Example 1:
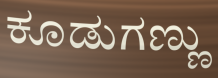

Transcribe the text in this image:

ಕೂಡುಗಣ್ಣು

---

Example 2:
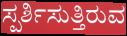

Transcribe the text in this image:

ಸ್ಪರ್ಶಿಸುತ್ತಿರುವ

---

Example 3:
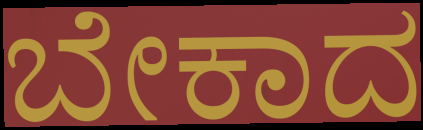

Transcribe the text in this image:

ಬೇಕಾದ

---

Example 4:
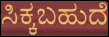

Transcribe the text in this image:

ಸಿಕ್ಕಬಹುದೆ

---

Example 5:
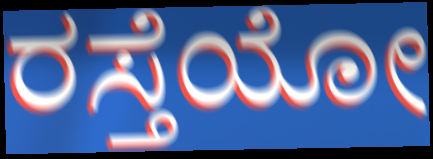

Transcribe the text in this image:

ರಸ್ತೆಯೋ